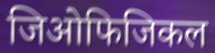
जिओफिजिकल